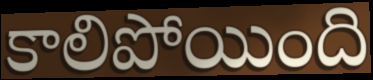
కాలిపోయింది